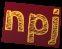
npj